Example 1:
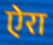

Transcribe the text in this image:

ऐरा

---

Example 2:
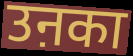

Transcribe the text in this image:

उऩका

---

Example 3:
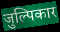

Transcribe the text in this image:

जुल्पिकार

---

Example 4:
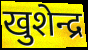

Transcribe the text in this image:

खुशेन्द्र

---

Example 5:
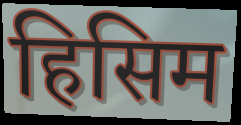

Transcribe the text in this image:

हिसिम